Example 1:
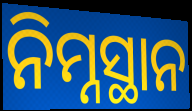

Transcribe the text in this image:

ନିମ୍ନସ୍ଥାନ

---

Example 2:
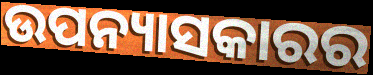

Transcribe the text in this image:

ଉପନ୍ୟାସକାରର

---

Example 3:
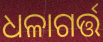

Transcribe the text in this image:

ଧଳାଗର୍ତ୍ତ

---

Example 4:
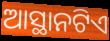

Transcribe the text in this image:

ଆସ୍ଥାନଟିଏ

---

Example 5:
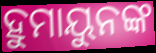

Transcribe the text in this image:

ହୁମାୟୁନଙ୍କ